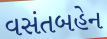
વસંતબહેન